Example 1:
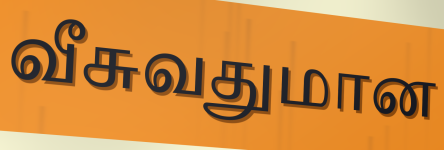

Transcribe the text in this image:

வீசுவதுமான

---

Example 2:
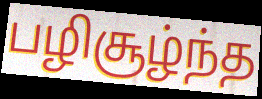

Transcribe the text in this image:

பழிசூழ்ந்த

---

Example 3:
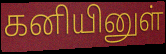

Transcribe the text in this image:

கனியினுள்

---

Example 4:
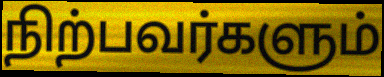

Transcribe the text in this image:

நிற்பவர்களும்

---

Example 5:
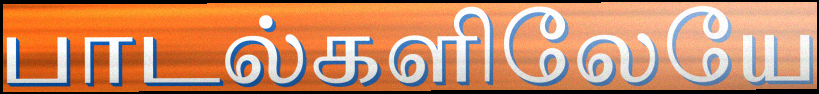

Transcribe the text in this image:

பாடல்களிலேயே